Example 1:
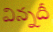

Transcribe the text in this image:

విన్నదీ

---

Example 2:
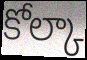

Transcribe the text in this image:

కోల్కా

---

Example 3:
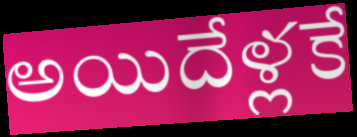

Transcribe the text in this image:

అయిదేళ్లకే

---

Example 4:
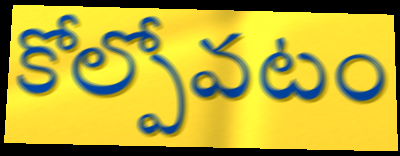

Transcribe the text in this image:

కోల్పోవటం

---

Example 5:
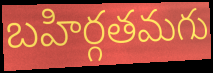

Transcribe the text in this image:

బహిర్గతమగు